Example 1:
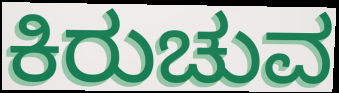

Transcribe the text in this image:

ಕಿರುಚುವ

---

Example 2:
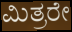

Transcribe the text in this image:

ಮಿತ್ರರೇ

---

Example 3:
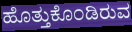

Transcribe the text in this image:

ಹೊತ್ತುಕೊಂಡಿರುವ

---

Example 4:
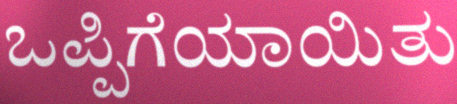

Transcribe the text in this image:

ಒಪ್ಪಿಗೆಯಾಯಿತು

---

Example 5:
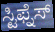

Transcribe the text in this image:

ಸ್ಟಿಫ್ನೆಸ್